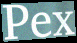
Pex